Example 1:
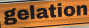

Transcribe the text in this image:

gelation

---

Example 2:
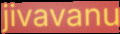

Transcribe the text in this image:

jivavanu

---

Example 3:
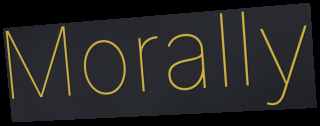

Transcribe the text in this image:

Morally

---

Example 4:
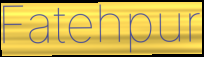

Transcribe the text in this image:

Fatehpur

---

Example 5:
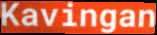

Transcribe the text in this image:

Kavingan